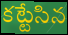
కట్టేసిన